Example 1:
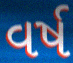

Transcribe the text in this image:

વર્ષ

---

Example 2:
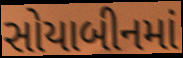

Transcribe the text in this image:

સોયાબીનમાં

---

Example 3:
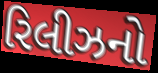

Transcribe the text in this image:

રિલીઝનો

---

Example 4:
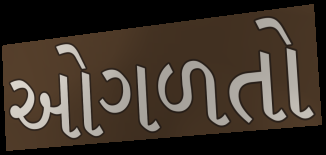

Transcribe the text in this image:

ઓગળતો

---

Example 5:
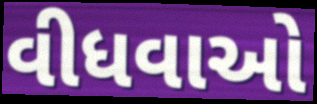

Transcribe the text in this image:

વીધવાઓ